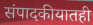
संपादकीयातही